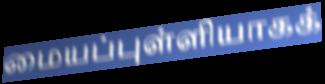
மையப்புள்ளியாகக்